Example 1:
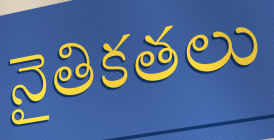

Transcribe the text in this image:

నైతికతలు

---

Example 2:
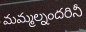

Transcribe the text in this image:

మమ్మల్నందరినీ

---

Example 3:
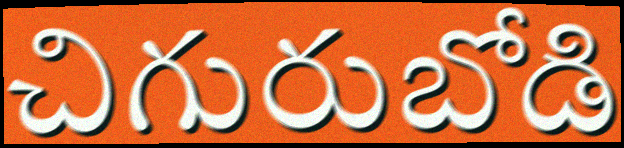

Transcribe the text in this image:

చిగురుబోడి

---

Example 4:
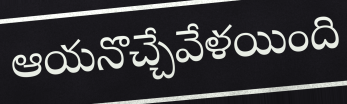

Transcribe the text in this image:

ఆయనొచ్చేవేళయింది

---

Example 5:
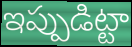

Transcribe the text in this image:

ఇప్పుడిట్టా